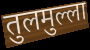
तुलमुल्ला